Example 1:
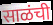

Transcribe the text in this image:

साळंची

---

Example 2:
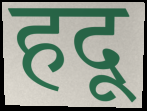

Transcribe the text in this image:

हदू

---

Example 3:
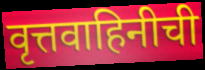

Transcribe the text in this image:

वृत्तवाहिनीची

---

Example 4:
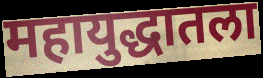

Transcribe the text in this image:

महायुद्धातला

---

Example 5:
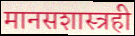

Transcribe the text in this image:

मानसशास्त्रही